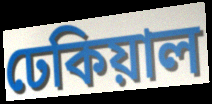
ঢেকিয়াল